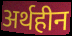
अर्थहीन